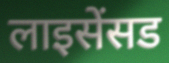
लाइसेंसड